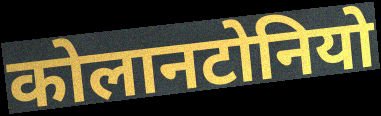
कोलानटोनियो